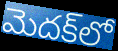
మెదక్‌లో